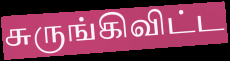
சுருங்கிவிட்ட